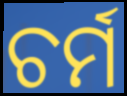
ଚର୍ମ